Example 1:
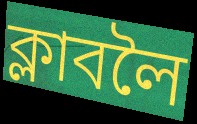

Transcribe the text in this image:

ক্লাবলৈ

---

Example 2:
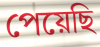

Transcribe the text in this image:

পেয়েছি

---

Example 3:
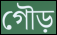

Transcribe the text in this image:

গৌড়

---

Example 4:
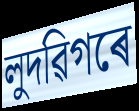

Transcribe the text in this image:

লুদৱিগৰে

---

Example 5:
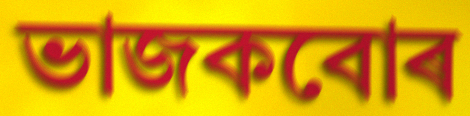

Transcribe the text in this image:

ভাজকবোৰ